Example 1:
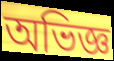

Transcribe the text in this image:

অভিজ্ঞ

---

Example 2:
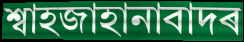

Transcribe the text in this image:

শ্বাহজাহানাবাদৰ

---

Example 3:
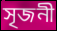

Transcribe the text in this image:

সৃজনী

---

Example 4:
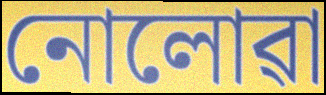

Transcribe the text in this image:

নোলোৱা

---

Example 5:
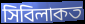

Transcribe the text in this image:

সিবিলাকত